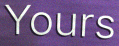
Yours